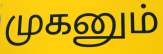
முகனும்